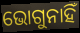
ଭୋଗୁନାହିଁ